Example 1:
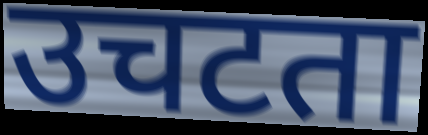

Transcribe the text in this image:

उचटता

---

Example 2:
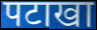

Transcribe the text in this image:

पटाखा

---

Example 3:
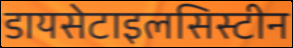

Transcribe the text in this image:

डायसेटाइलसिस्टीन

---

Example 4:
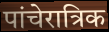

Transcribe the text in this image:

पांचेरात्रिक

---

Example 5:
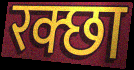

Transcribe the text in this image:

रक्छा